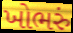
ખોભરું